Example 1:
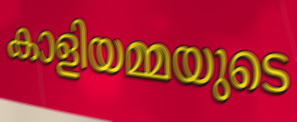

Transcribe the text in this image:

കാളിയമ്മയുടെ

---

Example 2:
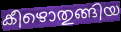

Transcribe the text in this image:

കീഴൊതുങ്ങിയ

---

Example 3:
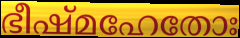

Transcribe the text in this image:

ഭീഷ്മഹേതോഃ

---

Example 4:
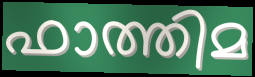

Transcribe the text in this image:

ഫാത്തിമ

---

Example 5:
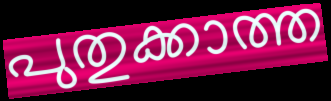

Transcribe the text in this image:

പുതുക്കാത്ത